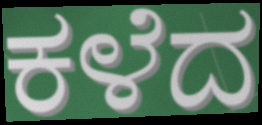
ಕಳೆದ